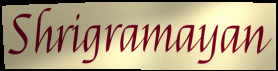
Shrigramayan